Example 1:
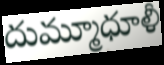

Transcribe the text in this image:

దుమ్మూధూళీ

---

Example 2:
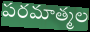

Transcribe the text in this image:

పరమాత్మల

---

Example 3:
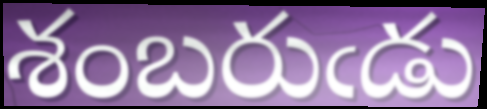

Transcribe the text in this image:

శంబరుఁడు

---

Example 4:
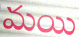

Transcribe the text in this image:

మయి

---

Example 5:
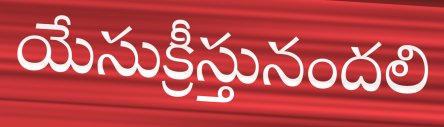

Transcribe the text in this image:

యేసుక్రీస్తునందలి